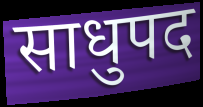
साधुपद